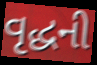
વૃદ્ધની